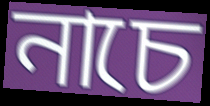
নাচে